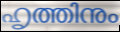
ഹൃത്തിനും